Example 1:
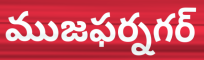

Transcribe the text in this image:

ముజఫర్నగర్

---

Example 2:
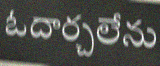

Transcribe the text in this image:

ఓదార్చలేను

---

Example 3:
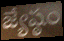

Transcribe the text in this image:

జ్యేష్ఠం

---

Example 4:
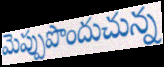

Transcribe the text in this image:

మెప్పుపొందుచున్న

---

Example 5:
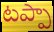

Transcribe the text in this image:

టప్పా